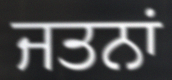
ਜਤਨਾਂ